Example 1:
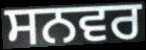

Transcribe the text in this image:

ਸਨਵਰ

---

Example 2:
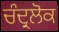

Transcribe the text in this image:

ਚੰਦ੍ਰਲੋਕ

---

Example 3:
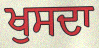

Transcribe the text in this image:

ਖੁਸਦਾ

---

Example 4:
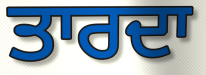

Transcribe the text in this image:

ਤਾਰਦਾ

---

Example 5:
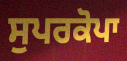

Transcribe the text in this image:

ਸੁਪਰਕੋਪਾ